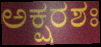
ಅಕ್ಷರಶಃ